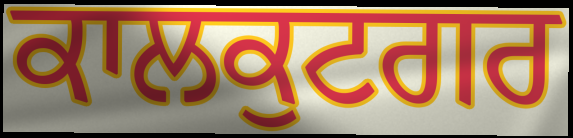
ਕਾਲਕੁਟਗਰ